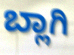
ಬ್ಲಾಗಿ